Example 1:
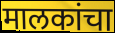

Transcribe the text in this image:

मालकांचा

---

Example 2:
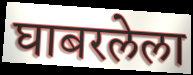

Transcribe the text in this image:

घाबरलेला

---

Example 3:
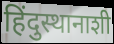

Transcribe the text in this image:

हिंदुस्थानाशी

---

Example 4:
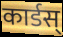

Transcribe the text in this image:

कार्डस्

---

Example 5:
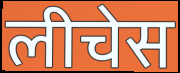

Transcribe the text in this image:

लीचेस